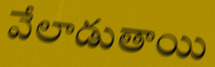
వేలాడుతాయి